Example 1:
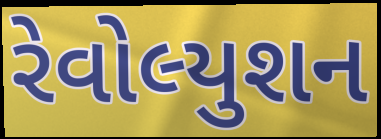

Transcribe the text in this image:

રેવોલ્યુશન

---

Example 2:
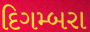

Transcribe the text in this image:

દિગમ્બરા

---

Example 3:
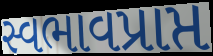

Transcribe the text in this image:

સ્વભાવપ્રાપ્ત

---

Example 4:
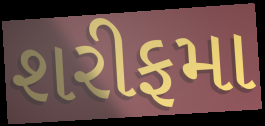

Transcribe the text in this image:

શરીફમા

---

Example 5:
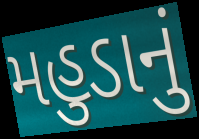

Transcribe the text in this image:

મહુડાનું